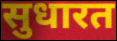
सुधारत